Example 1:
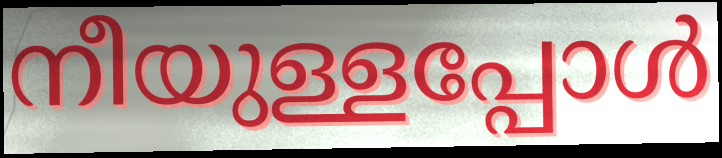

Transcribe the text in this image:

നീയുള്ളപ്പോൾ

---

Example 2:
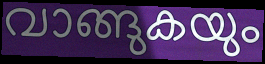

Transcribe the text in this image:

വാങ്ങുകയും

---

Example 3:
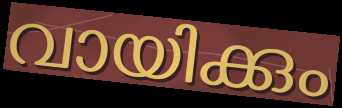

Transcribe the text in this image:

വായിക്കും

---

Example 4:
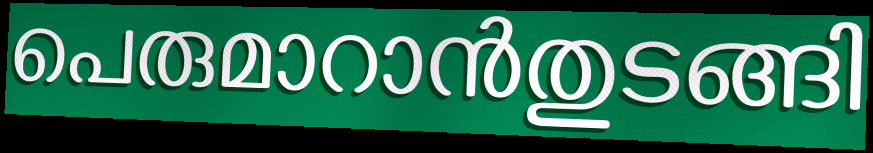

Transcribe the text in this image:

പെരുമാറാൻതുടങ്ങി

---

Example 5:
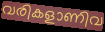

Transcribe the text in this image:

വരികളാണിവ